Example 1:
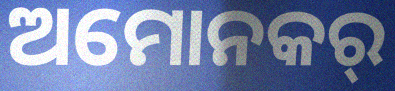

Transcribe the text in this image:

ଅମୋନକର୍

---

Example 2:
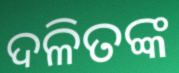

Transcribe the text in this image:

ଦଳିତଙ୍କ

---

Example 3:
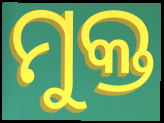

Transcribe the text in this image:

ମୁକ୍ତ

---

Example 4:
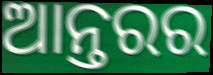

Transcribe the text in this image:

ଆନ୍ତରର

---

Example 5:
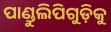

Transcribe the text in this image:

ପାଣ୍ଡୁଲିପିଗୁଡ଼ିକୁ